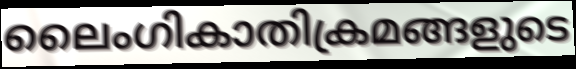
ലൈംഗികാതിക്രമങ്ങളുടെ